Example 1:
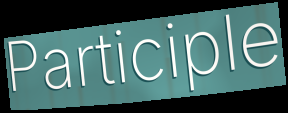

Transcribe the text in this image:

Participle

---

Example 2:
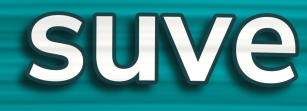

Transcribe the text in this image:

suve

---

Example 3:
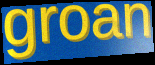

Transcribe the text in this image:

groan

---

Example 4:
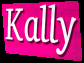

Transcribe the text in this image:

Kally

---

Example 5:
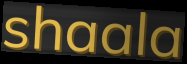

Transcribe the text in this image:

shaala